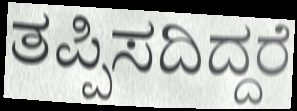
ತಪ್ಪಿಸದಿದ್ದರೆ